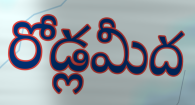
రోడ్లమీద